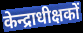
केन्द्राधीक्षकों